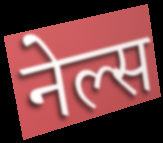
नेल्स